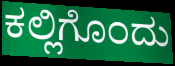
ಕಲ್ಲಿಗೊಂದು